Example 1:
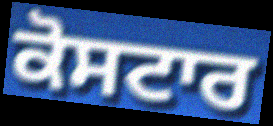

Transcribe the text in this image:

ਕੋਸਟਾਰ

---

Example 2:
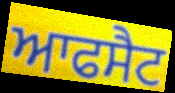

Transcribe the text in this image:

ਆਫਸੈਟ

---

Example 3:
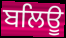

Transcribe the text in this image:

ਬਲਿਊ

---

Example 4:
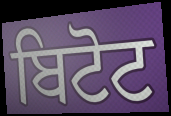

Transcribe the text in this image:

ਬਿਟੋਟ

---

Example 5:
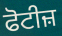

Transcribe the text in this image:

ਫੋਟੀਜ਼